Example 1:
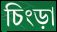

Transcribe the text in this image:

চিংড়া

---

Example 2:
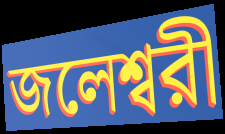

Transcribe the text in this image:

জলেশ্বরী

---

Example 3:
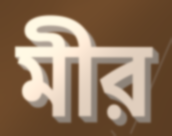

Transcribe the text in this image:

মীর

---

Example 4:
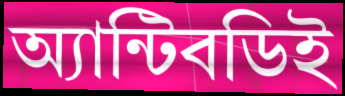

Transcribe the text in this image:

অ্যান্টিবডিই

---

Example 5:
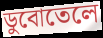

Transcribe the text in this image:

ডুবোতেলে